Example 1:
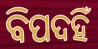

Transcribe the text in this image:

ବିପଦହିଁ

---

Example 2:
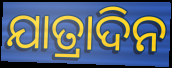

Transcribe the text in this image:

ଯାତ୍ରାଦିନ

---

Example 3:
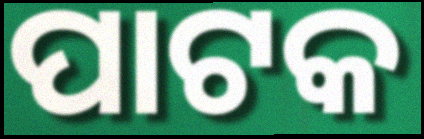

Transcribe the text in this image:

ପାଟକ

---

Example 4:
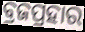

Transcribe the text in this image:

ବ୍ରଜପ୍ରହାର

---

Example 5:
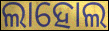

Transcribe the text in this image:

ଲାହୋଲ